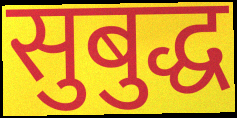
सुबुद्ध